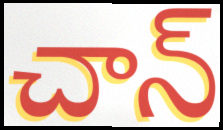
చాన్